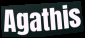
Agathis